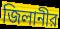
জিলানীর